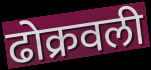
ढोक्रवली